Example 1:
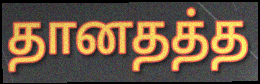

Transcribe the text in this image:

தானதத்த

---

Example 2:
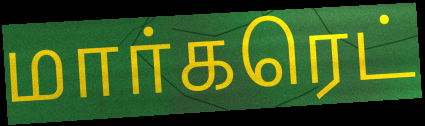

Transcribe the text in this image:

மார்கரெட்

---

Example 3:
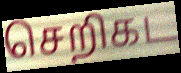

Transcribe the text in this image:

செறிகட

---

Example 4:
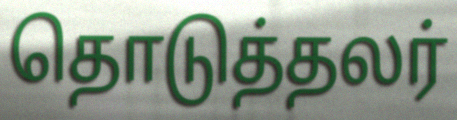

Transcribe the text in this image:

தொடுத்தலர்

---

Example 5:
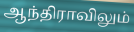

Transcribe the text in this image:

ஆந்திராவிலும்